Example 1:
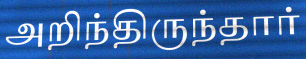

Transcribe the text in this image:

அறிந்திருந்தார்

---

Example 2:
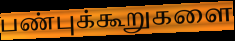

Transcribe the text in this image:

பண்புக்கூறுகளை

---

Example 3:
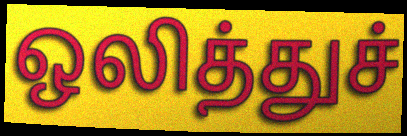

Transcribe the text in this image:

ஒலித்துச்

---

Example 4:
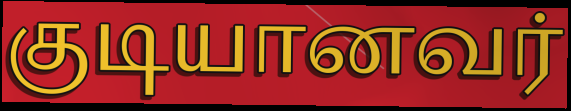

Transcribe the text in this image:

குடியானவர்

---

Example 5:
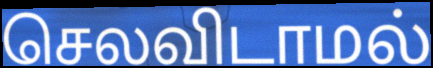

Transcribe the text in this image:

செலவிடாமல்